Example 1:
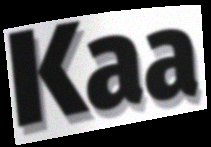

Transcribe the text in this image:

Kaa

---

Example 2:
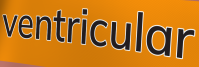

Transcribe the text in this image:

ventricular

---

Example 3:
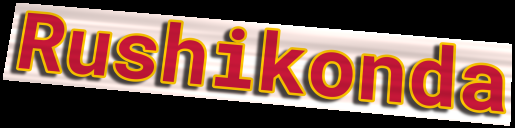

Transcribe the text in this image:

Rushikonda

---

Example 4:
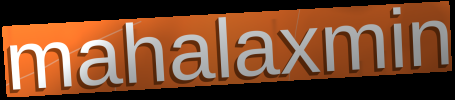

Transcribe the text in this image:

mahalaxmin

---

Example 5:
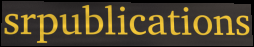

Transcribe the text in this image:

srpublications